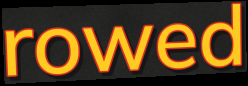
rowed